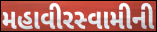
મહાવીરસ્વામીની